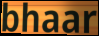
bhaar